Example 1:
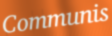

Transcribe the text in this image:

Communis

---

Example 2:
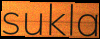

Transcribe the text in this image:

sukla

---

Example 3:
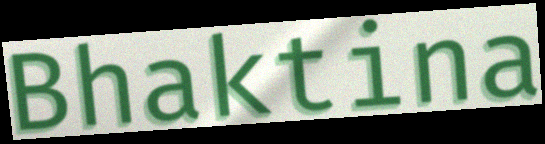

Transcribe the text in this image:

Bhaktina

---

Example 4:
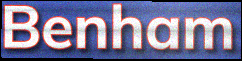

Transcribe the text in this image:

Benham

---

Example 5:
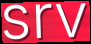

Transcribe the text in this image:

srv